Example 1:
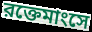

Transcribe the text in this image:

রক্তেমাংসে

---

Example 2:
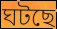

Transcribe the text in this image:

ঘটছে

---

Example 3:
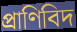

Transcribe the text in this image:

প্রাণিবিদ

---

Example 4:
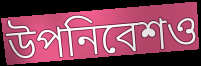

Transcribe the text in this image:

উপনিবেশও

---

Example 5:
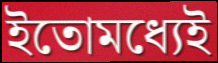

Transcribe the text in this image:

ইতোমধ্যেই